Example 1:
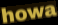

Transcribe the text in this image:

howa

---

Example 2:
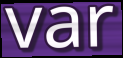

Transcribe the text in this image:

var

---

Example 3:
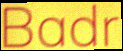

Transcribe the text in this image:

Badr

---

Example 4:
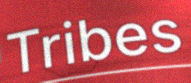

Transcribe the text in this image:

Tribes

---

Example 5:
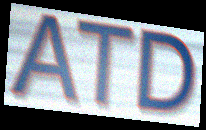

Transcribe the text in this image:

ATD